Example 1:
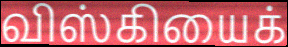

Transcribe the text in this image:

விஸ்கியைக்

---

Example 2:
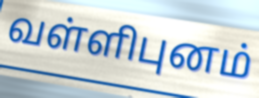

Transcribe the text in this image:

வள்ளிபுனம்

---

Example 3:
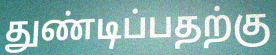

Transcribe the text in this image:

துண்டிப்பதற்கு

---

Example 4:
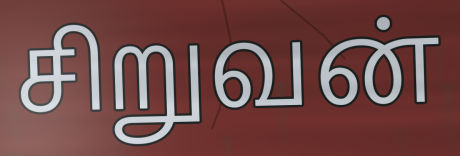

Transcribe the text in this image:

சிறுவன்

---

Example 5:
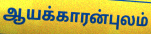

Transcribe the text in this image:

ஆயக்காரன்புலம்